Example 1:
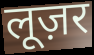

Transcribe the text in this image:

लूज़र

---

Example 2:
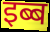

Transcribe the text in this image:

इब्ब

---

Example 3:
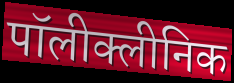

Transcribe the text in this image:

पॉलीक्लीनिक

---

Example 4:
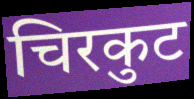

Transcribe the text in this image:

चिरकुट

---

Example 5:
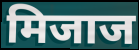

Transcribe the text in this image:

मिजाज